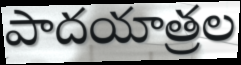
పాదయాత్రల